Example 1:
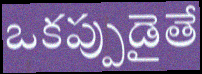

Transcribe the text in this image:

ఒకప్పుడైతే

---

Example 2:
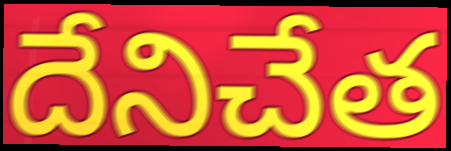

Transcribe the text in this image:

దేనిచేత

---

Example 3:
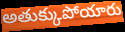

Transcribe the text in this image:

అతుక్కుపోయారు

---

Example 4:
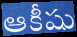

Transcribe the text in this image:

ఆకీషు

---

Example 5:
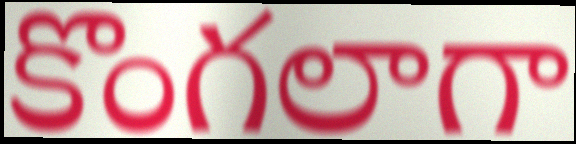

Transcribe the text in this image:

కొంగలాగా